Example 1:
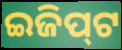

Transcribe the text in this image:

ଇଜିପ୍‍ଟ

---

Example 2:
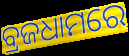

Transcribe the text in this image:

ବ୍ରଜଧାମରେ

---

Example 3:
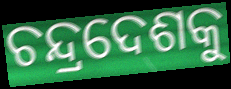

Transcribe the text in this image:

ଚନ୍ଦ୍ରଦେଶକୁ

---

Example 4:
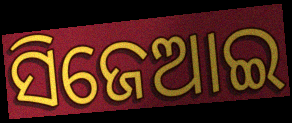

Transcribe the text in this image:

ସିଜେଆଇ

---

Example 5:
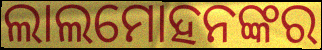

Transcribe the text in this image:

ଲାଲମୋହନଙ୍କର